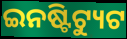
ଇନଷ୍ଟିଟ୍ୟୁଟ